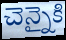
చెన్నైకి